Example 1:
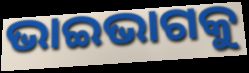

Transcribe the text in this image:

ଭାଇଭାଗକୁ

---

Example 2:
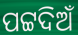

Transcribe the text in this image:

ପଟ୍ଟଦିଅଁ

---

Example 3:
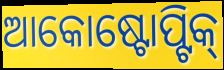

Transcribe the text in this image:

ଆକୋଷ୍ଟୋପ୍ଟିକ୍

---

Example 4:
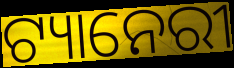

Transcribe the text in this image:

ଟ୍ୟାନେରୀ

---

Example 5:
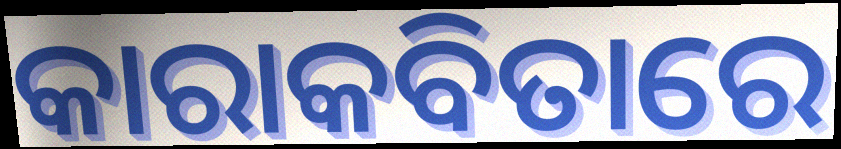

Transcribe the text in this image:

କାରାକବିତାରେ